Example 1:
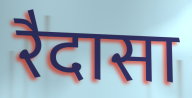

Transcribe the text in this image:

रैदासा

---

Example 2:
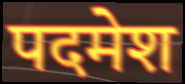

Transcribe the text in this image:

पदमेश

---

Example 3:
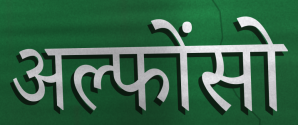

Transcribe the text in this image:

अल्फोंसो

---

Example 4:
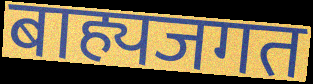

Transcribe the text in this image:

बाह्यजगत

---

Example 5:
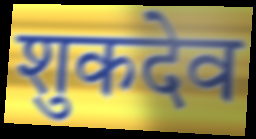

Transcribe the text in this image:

शुकदेव